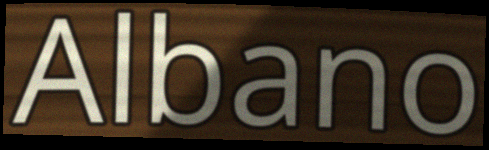
Albano